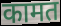
कामत